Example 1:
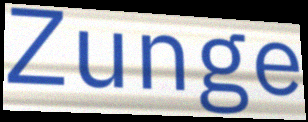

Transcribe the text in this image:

Zunge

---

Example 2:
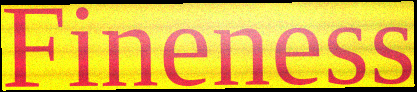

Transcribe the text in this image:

Fineness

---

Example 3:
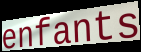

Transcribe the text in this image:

enfants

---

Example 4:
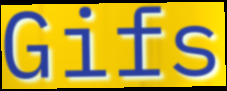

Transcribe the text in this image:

Gifs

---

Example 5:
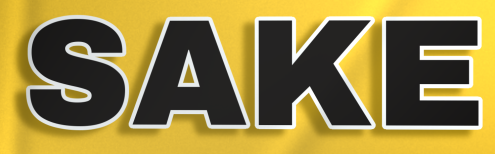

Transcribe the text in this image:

SAKE